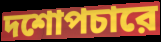
দশোপচারে